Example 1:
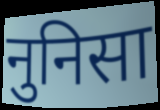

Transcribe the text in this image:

नुनिसा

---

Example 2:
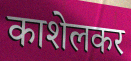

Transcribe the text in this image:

काशेलकर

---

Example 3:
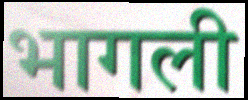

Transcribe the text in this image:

भागली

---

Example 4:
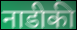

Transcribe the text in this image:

नाडीकी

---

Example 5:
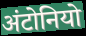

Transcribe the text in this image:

अंटोनियो